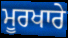
ਮੂਰਖਾਰੇ